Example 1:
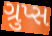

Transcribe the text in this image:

ગ્રુપ્સ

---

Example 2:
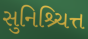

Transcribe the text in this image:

સુનિશ્ર્ચિત્ત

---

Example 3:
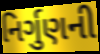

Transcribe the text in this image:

નિર્ગુણની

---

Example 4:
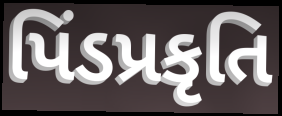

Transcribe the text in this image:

પિંડપ્રકૃતિ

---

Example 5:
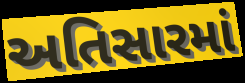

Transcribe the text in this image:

અતિસારમાં